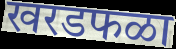
खरडफळा